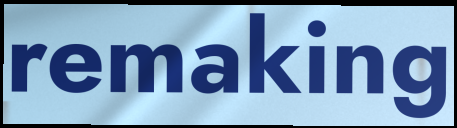
remaking